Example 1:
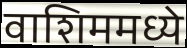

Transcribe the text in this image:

वाशिममध्ये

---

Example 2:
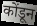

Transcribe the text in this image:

कोंडून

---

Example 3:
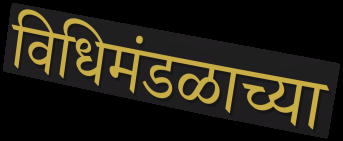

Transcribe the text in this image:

विधिमंडळाच्या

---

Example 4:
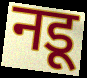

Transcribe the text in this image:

नडू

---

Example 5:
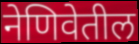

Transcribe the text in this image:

नेणिवेतील